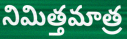
నిమిత్తమాత్ర